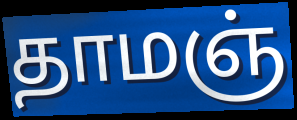
தாமஞ்